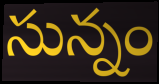
సున్నం